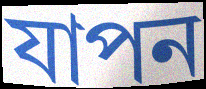
যাপন